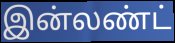
இன்லண்ட்